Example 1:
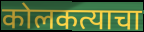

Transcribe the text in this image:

कोलकत्याचा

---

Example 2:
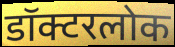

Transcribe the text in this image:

डॉक्टरलोक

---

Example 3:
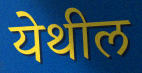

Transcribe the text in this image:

येथील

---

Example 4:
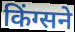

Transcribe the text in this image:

किंग्सने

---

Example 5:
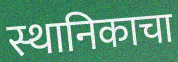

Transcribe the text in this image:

स्थानिकाचा